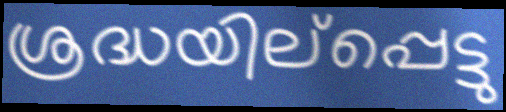
ശ്രദ്ധയില്പ്പെട്ടു